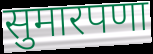
सुमारपणा